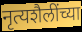
नृत्यशैलींच्या